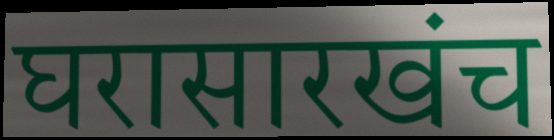
घरासारखंच